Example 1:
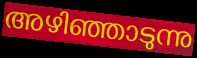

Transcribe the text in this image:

അഴിഞ്ഞാടുന്നു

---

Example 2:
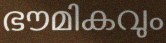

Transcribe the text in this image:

ഭൗമികവും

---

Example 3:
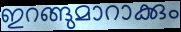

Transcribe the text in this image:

ഇറങ്ങുമാറാക്കും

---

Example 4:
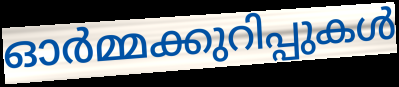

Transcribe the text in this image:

ഓർമ്മക്കുറിപ്പുകൾ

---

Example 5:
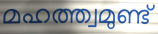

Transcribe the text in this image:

മഹത്ത്വമുണ്ട്